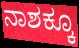
ನಾಶಕ್ಕೂ